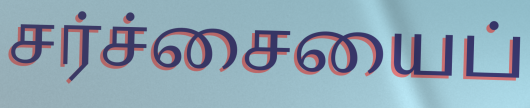
சர்ச்சையைப்